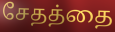
சேதத்தை